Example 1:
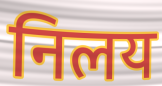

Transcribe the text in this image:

निलय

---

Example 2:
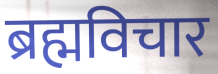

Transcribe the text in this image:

ब्रह्मविचार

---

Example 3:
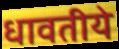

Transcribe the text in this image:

धावतीये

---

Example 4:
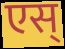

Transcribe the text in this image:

एस्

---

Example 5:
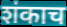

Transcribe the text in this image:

शंकाच